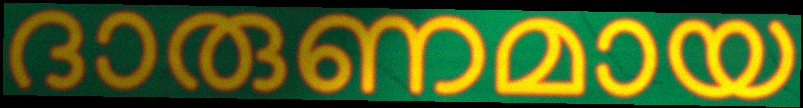
ദാരുണമായ